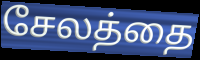
சேலத்தை